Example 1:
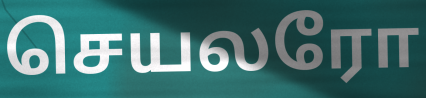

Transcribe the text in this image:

செயலரோ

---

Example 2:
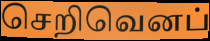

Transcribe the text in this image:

செறிவெனப்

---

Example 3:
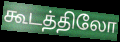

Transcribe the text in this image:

கூடத்திலோ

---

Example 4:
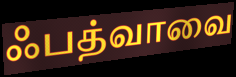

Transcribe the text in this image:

ஃபத்வாவை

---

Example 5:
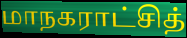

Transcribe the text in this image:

மாநகராட்சித்